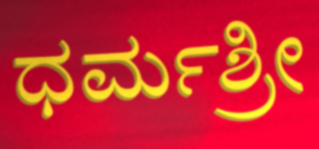
ಧರ್ಮಶ್ರೀ